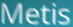
Metis